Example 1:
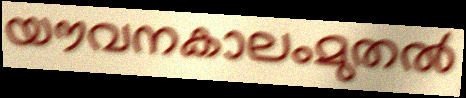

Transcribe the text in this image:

യൗവനകാലംമുതൽ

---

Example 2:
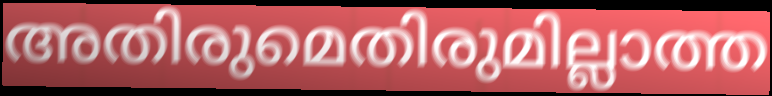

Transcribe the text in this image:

അതിരുമെതിരുമില്ലാത്ത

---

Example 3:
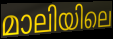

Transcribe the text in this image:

മാലിയിലെ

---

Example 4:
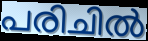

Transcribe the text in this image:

പരിചിൽ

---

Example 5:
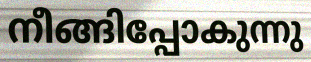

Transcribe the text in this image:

നീങ്ങിപ്പോകുന്നു